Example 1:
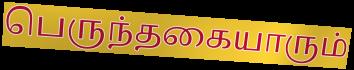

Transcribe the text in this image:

பெருந்தகையாரும்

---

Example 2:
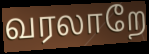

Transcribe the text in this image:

வரலாறே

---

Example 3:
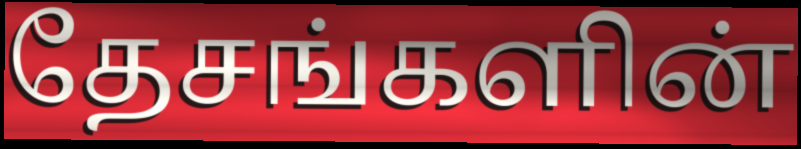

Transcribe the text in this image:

தேசங்களின்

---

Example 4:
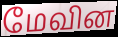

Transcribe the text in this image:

மேவின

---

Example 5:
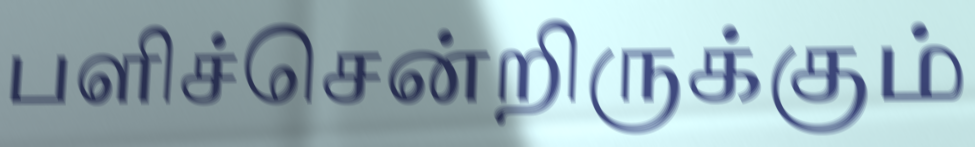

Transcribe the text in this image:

பளிச்சென்றிருக்கும்